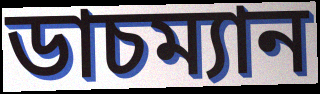
ডাচম্যান